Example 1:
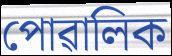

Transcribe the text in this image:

পোৱালিক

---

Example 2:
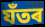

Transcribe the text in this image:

যঁতৰ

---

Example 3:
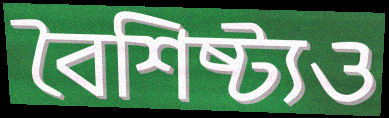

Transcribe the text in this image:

বৈশিষ্ট্যও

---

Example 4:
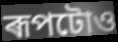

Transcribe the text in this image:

ৰূপটোও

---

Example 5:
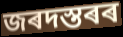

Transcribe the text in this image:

জৰদস্তৰৰ